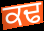
ਕਢ